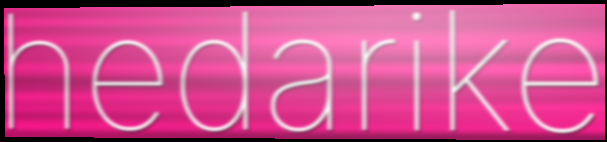
hedarike